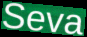
Seva